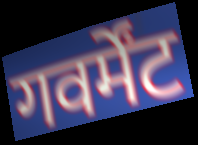
गवर्मेंट